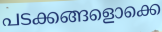
പടക്കങ്ങളൊക്കെ